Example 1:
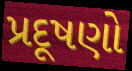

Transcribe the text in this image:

પ્રદૂષણો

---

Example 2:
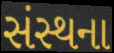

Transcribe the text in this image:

સંસ્થના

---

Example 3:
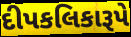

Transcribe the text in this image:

દીપકલિકારૂપે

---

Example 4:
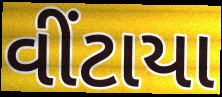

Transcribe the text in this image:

વીંટાયા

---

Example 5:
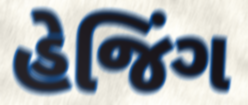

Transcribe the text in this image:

હેજિંગ